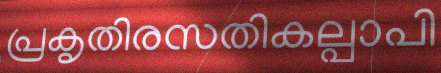
പ്രകൃതിരസതികല്പാപി